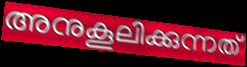
അനുകൂലിക്കുന്നത്